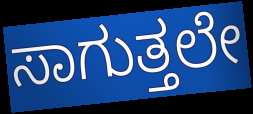
ಸಾಗುತ್ತಲೇ